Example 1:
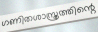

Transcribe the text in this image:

ഗണിതശാസ്ത്രത്തിന്റെ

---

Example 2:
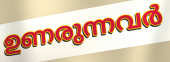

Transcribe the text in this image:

ഉണരുന്നവർ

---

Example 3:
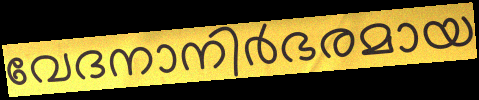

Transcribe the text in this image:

വേദനാനിർഭരമായ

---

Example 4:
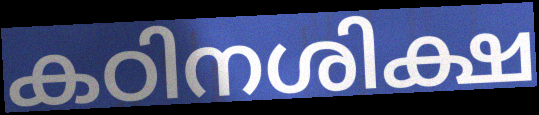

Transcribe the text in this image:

കഠിനശിക്ഷ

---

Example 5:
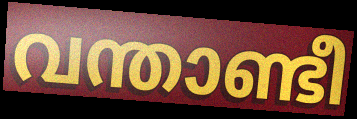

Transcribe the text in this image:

വന്താണ്ടീ